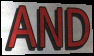
AND